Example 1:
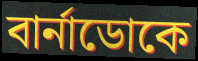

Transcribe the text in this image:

বার্নাডোকে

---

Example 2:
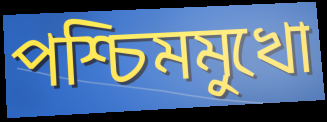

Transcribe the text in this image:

পশ্চিমমুখো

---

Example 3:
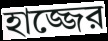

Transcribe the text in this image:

হাজ্জের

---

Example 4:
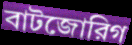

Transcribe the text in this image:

বাটজোরিগ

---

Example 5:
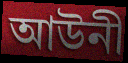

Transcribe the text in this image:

আউনী